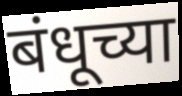
बंधूच्या